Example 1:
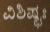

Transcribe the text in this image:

ವಿಶಿಷ್ಟಃ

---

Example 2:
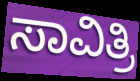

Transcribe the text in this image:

ಸಾವಿತ್ರಿ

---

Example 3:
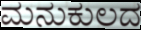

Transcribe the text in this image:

ಮನುಕುಲದ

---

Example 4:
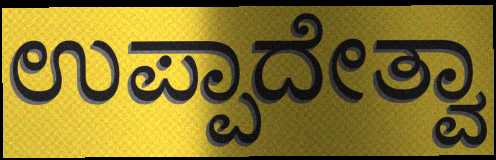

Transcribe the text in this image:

ಉಪ್ಪಾದೇತ್ವಾ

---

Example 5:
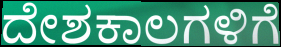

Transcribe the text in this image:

ದೇಶಕಾಲಗಳಿಗೆ